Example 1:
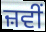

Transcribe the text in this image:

ਜ਼ਵੀਂ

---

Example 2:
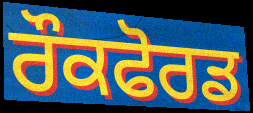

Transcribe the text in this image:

ਰੌਕਫੋਰਡ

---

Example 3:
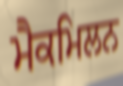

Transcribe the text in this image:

ਮੈਕਮਿਲਨ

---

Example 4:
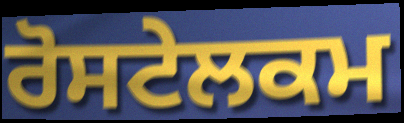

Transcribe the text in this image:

ਰੋਸਟੇਲਕਮ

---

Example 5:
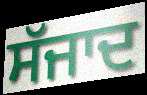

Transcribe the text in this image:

ਸੱਜਾਦ